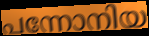
പന്നോനിയ